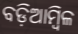
ବଡ଼ିଆମ୍ବିଳ